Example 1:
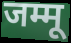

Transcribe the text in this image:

जम्मू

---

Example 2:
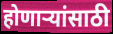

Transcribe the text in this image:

होणाऱ्यांसाठी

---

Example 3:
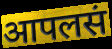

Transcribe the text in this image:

आपलसं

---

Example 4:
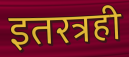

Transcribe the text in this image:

इतरत्रही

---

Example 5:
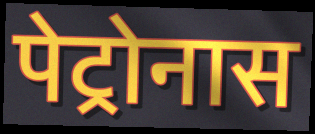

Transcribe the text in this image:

पेट्रोनास